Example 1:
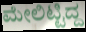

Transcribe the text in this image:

ಮೇಲಿಟ್ಟಿದ್ದ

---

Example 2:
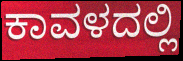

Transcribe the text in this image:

ಕಾವಳದಲ್ಲಿ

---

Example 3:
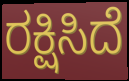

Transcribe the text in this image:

ರಕ್ಷಿಸಿದೆ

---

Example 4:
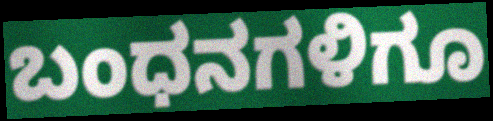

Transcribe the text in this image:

ಬಂಧನಗಳಿಗೂ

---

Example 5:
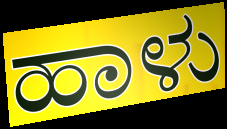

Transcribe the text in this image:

ಹಾಳು